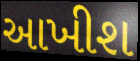
આખીશ